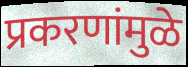
प्रकरणांमुळे